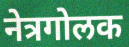
नेत्रगोलक